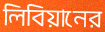
লিবিয়ানের